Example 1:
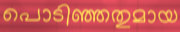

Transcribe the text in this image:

പൊടിഞ്ഞതുമായ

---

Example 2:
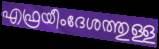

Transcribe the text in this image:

എഫ്രയീംദേശത്തുള്ള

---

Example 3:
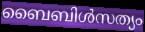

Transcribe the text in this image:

ബൈബിൾസത്യം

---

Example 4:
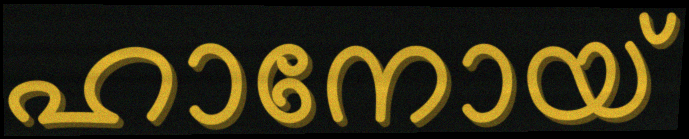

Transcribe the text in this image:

ഹാനോയ്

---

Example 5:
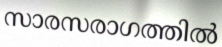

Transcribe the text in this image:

സാരസരാഗത്തിൽ